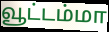
வூட்டம்மா